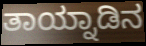
ತಾಯ್ನಾಡಿನ